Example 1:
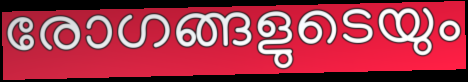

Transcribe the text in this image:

രോഗങ്ങളുടെയും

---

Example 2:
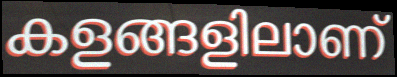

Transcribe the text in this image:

കളങ്ങളിലാണ്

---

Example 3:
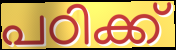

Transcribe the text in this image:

പഠിക്ക്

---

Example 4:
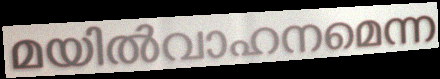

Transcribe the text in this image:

മയിൽവാഹനമെന്ന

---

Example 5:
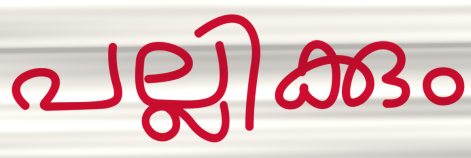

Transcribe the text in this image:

പല്ലിക്കും